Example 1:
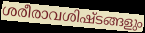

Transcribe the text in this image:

ശരീരാവശിഷ്ടങ്ങളും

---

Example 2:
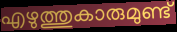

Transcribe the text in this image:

എഴുത്തുകാരുമുണ്ട്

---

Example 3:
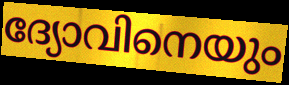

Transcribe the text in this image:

ദ്യോവിനെയും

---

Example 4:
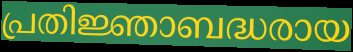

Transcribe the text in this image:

പ്രതിജ്ഞാബദ്ധരായ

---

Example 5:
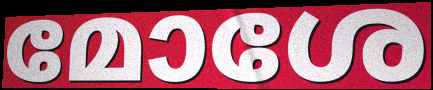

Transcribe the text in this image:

മോശേ